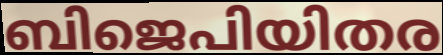
ബിജെപിയിതര